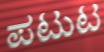
ಪಟುಟ